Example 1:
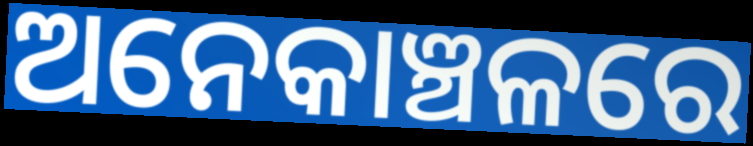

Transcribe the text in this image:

ଅନେକାଞ୍ଚଳରେ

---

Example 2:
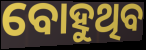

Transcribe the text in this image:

ବୋହୁଥିବ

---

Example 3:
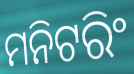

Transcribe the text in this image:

ମନିଟରିଂ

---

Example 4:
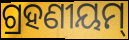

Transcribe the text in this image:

ଗ୍ରହଣୀୟମ୍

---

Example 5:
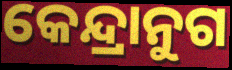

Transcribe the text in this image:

କେନ୍ଦ୍ରାନୁଗ